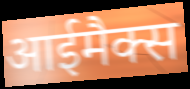
आईमैक्स